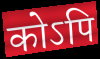
कोऽपि